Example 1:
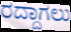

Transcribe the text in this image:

ರದ್ದಾಗಲು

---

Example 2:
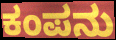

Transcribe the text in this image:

ಕಂಪನು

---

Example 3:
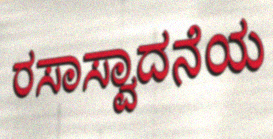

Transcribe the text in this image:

ರಸಾಸ್ವಾದನೆಯ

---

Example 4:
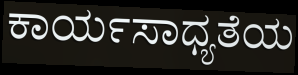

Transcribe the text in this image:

ಕಾರ್ಯಸಾಧ್ಯತೆಯ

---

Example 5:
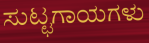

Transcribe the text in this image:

ಸುಟ್ಟಗಾಯಗಳು